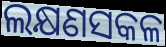
ଲକ୍ଷଣସକଳ